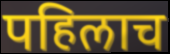
पहिलाच